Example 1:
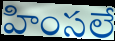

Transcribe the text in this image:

హింసలే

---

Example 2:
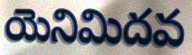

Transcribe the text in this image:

యెనిమిదవ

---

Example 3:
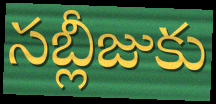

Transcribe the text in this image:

సబ్లీజుకు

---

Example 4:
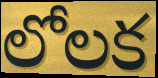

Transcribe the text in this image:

లోలక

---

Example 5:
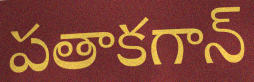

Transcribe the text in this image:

పతాకగాన్